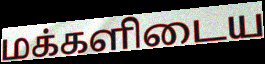
மக்களிடைய